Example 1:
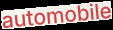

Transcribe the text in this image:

automobile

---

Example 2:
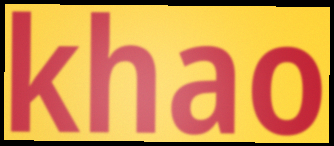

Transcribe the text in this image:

khao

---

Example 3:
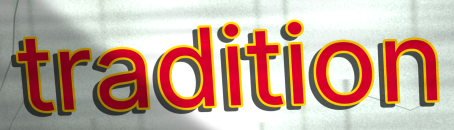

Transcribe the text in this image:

tradition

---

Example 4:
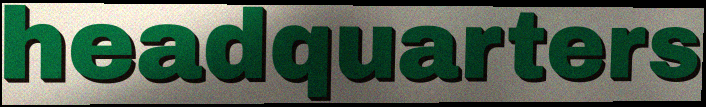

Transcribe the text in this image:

headquarters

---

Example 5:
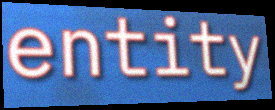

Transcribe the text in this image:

entity